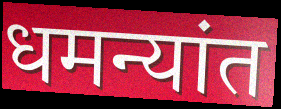
धमन्यांत